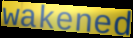
wakened